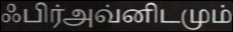
ஃபிர்அவ்னிடமும்